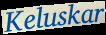
Keluskar